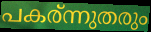
പകര്ന്നുതരും